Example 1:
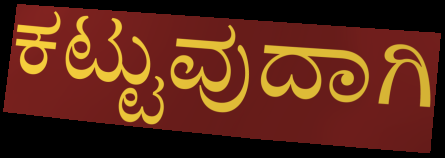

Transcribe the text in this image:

ಕಟ್ಟುವುದಾಗಿ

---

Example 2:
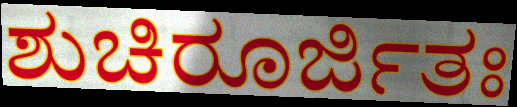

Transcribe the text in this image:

ಶುಚಿರೂರ್ಜಿತಃ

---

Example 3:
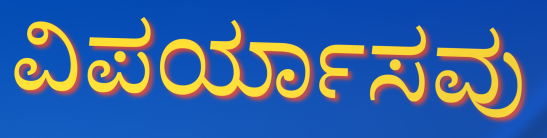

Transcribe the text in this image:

ವಿಪರ್ಯಾಸವು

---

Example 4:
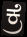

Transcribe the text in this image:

ಕ್ರೆ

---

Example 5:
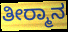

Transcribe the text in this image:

ತೀರ‍್ಮಾನ